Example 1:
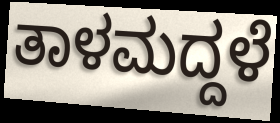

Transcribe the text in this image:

ತಾಳಮದ್ದಳೆ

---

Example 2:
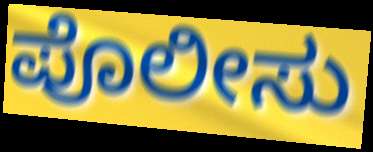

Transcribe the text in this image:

ಪೊಲೀಸು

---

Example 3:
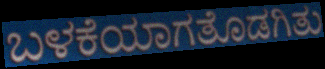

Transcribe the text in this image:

ಬಳಕೆಯಾಗತೊಡಗಿತು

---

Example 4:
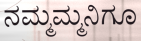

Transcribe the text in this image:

ನಮ್ಮಮ್ಮನಿಗೂ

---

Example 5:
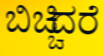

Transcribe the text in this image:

ಬಿಚ್ಚಿದರೆ